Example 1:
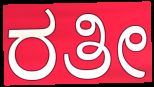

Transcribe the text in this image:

ರತೀ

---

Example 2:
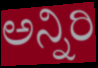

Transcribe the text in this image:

ಅನ್ನಿರಿ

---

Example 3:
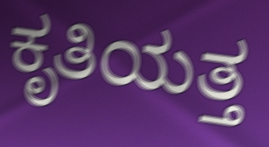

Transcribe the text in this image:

ಕೃತಿಯತ್ತ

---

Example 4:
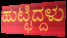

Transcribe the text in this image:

ಹುಟ್ಟಿದ್ದಳು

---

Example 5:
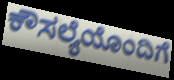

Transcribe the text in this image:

ಕೌಸಲ್ಯೆಯೊಂದಿಗೆ